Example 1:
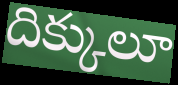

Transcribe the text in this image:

దిక్కులూ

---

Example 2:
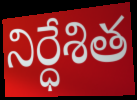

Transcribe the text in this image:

నిర్ధేశిత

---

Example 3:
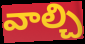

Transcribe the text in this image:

వాల్చి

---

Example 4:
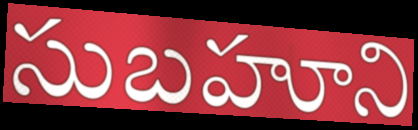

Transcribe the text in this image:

సుబహూని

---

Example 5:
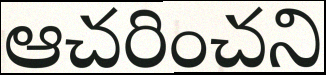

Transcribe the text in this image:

ఆచరించని